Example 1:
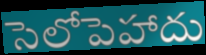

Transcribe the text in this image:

సెలోపెహాదు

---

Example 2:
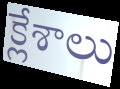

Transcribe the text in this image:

క్లేశాలు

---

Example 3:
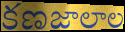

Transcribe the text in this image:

కణజాలాల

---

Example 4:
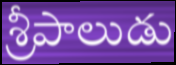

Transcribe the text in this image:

శ్రీపాలుడు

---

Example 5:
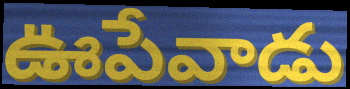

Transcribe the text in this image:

ఊపేవాడు